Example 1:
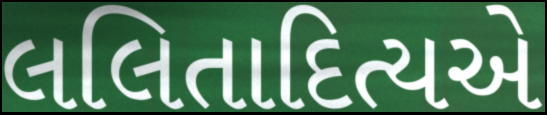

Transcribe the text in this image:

લલિતાદિત્યએ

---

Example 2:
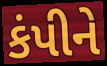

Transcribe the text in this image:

કંપીને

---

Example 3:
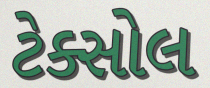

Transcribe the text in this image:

ટેક્સોલ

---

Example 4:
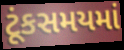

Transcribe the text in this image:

ટૂંકસમયમાં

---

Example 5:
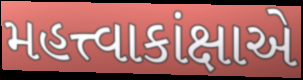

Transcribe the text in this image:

મહત્ત્વાકાંક્ષાએ